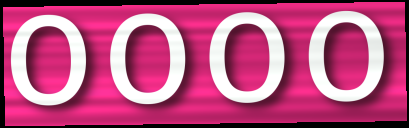
oooo